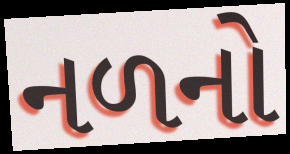
નળનો